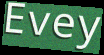
Evey